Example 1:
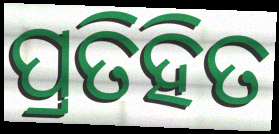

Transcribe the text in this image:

ପ୍ରତିହିତ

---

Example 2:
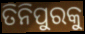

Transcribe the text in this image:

ତିନିପୁରକୁ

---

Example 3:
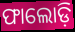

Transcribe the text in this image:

ଫାଲୋଡ଼ି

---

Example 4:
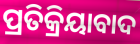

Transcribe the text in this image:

ପ୍ରତିକ୍ରିୟାବାଦ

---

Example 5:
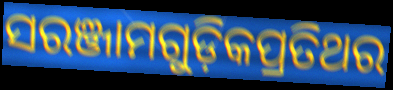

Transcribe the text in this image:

ସରଞ୍ଜାମଗୁଡ଼ିକପ୍ରତିଥର